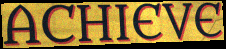
ACHIEVE